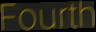
Fourth